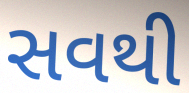
સવથી